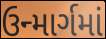
ઉન્માર્ગમાં